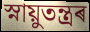
স্নায়ুতন্ত্ৰৰ